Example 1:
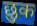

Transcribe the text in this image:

छुक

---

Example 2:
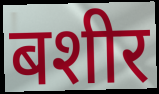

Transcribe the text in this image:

बशीर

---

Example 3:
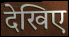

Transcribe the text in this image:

देखिए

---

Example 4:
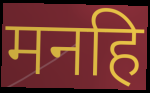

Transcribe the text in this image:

मनहि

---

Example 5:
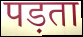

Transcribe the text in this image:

पड़ता